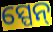
ସ୍ପେନ୍